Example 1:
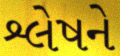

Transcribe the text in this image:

શ્લેષને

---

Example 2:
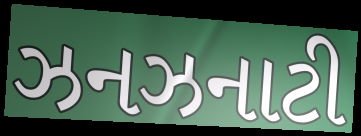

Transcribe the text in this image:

ઝનઝનાટી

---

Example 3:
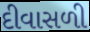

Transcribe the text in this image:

દીવાસળી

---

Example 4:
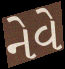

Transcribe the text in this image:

નેવે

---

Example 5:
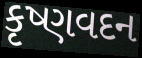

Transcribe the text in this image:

કૃષ્ણવદન